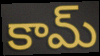
కామ్